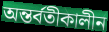
অন্তর্বতীকালীন